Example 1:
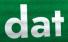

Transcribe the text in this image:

dat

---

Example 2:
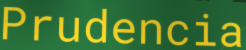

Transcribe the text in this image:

Prudencia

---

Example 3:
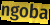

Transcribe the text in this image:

ngoba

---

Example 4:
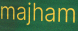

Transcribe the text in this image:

majham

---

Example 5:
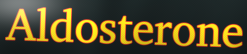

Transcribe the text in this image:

Aldosterone